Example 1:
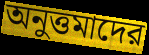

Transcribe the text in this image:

অনুত্তমাদের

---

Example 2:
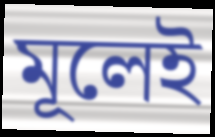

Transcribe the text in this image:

মূলেই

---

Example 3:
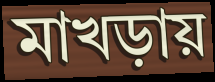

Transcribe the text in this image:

মাখড়ায়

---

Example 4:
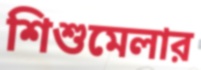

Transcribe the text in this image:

শিশুমেলার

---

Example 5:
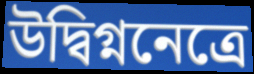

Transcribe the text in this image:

উদ্বিগ্ননেত্রে